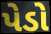
પેડો